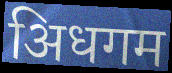
अिधगम